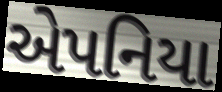
એપનિયા